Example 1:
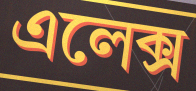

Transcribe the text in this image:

এলেক্স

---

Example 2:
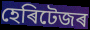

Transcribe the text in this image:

হেৰিটেজৰ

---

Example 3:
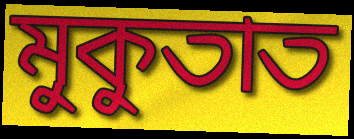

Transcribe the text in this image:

মুকুতাত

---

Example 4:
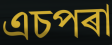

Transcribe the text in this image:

এচপৰা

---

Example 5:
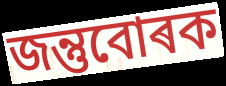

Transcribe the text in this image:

জন্তুবোৰক